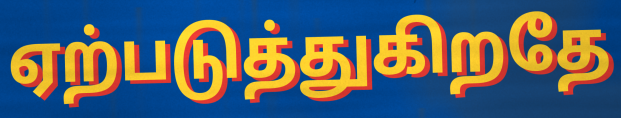
ஏற்படுத்துகிறதே